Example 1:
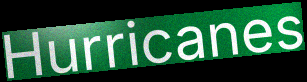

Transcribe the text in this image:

Hurricanes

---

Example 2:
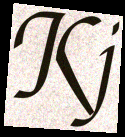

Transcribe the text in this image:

Kj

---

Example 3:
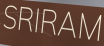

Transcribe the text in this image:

SRIRAM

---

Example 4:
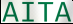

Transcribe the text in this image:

AITA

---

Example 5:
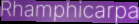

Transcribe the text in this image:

Rhamphicarpa